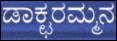
ಡಾಕ್ಟರಮ್ಮನ